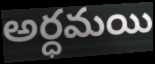
అర్ధమయి